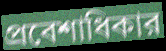
প্রবেশাধিকার